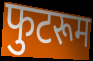
फुटरूम